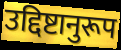
उद्दिष्टानुरूप